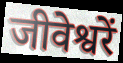
जीवेश्वरें